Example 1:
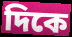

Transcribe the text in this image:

দিকে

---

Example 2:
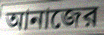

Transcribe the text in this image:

আনাজের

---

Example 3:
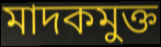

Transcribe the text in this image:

মাদকমুক্ত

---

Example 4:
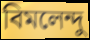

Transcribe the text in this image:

বিমলেন্দু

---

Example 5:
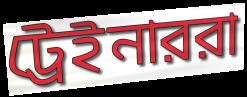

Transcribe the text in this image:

ট্রেইনাররা